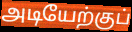
அடியேற்குப்